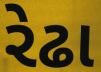
રેઢા